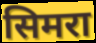
सिमरा